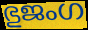
ഭുജംഗ